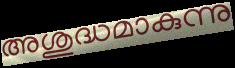
അശുദ്ധമാകുന്നു